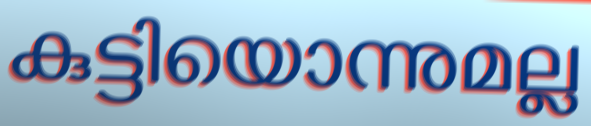
കുട്ടിയൊന്നുമല്ല